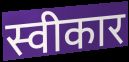
स्वीकार